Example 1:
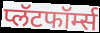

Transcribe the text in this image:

प्लॅटफॉर्म्स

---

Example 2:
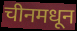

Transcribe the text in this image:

चीनमधून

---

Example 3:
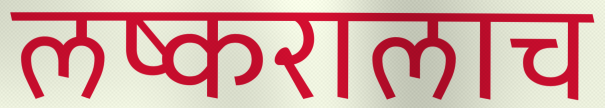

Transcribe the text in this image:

लष्करालाच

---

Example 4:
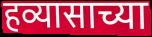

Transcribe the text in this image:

हव्यासाच्या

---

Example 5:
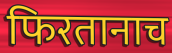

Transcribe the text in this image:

फिरतानाच